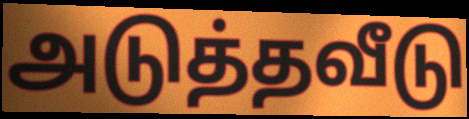
அடுத்தவீடு